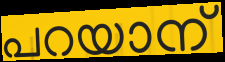
പറയാന്